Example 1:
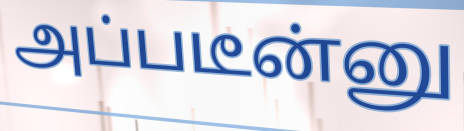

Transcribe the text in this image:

அப்படீன்னு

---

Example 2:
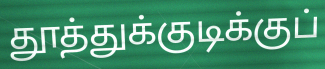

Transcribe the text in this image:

தூத்துக்குடிக்குப்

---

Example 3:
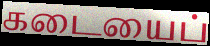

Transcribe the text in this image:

கடையைப்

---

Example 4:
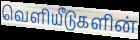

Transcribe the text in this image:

வெளியீடுகளின்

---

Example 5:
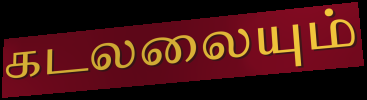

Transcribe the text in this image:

கடலலையும்